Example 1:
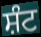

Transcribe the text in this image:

ਸ਼ੰਟ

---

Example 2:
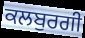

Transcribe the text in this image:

ਕਲਬੁਰਗੀ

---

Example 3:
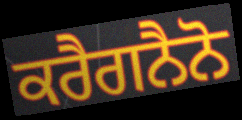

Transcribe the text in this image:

ਕਰੈਗਨੈਨੋ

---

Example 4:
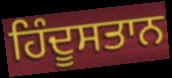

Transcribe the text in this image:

ਹਿੰਦੂਸਤਾਨ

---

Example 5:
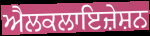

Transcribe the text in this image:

ਐਲਕਲਾਇਜ਼ੇਸ਼ਨ